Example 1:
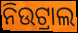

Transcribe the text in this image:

ନିଉଟ୍ରାଲ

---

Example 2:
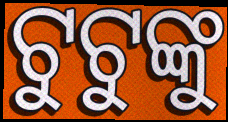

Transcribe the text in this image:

ଟୁଟୁଙ୍କୁ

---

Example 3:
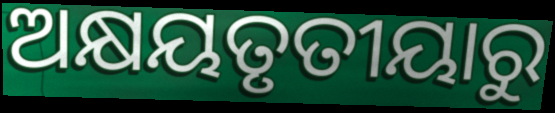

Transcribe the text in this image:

ଅକ୍ଷୟତୃତୀୟାରୁ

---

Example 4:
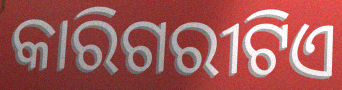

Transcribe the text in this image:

କାରିଗରୀଟିଏ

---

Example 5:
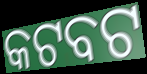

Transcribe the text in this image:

କଟବଟ